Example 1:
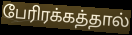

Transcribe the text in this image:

பேரிரக்கத்தால்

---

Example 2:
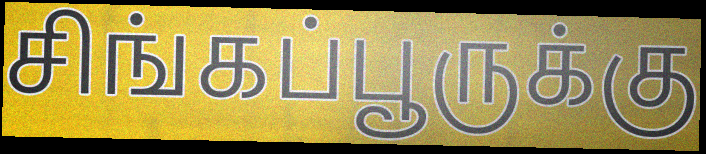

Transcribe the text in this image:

சிங்கப்பூருக்கு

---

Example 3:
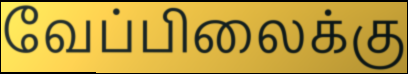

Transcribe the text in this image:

வேப்பிலைக்கு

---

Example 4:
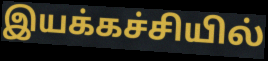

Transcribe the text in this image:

இயக்கச்சியில்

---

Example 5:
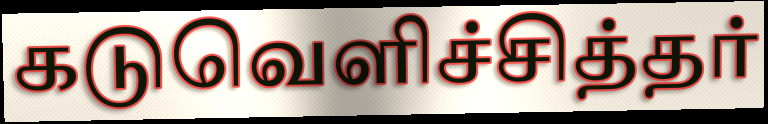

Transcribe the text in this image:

கடுவெளிச்சித்தர்